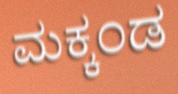
ಮಕ್ಕಂಡ